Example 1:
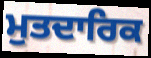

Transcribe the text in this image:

ਮੁਤਦਾਰਿਕ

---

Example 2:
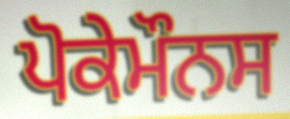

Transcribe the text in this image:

ਪੋਕੇਮੌਨਸ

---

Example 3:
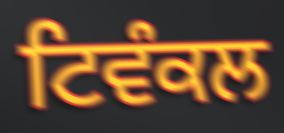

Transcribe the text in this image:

ਟਿਵੰਕਲ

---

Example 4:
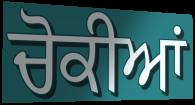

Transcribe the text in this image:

ਚੋਕੀਆਂ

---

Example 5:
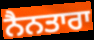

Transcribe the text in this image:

ਨੈਨਤਾਰਾ